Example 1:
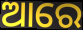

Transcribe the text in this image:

ଆରେ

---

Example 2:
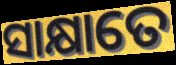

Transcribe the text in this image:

ସାକ୍ଷାତେ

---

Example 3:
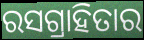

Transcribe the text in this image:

ରସଗ୍ରାହିତାର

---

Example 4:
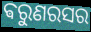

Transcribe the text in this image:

ଵରୁଣରସର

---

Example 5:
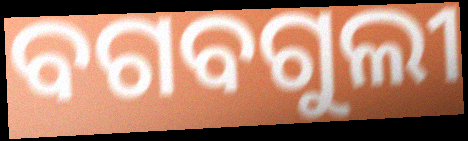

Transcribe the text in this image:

ବଗବଗୁଲୀ